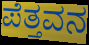
ಪೆತ್ತವನ